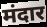
मंदार